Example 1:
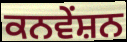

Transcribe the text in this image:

ਕਨਵੇਂਸ਼ਨ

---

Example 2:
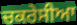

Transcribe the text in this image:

ਚਕਰੇਸੀਆ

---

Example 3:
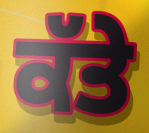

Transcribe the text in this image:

ਕੱਤੇ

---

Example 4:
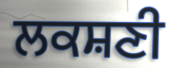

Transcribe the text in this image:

ਲਕਸ਼ਣੀ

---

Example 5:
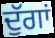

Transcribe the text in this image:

ਦੁੱਗਾਂ